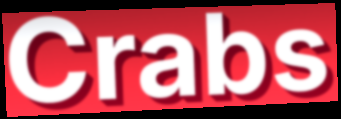
Crabs